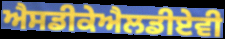
ਐਸਡੀਕੇਐਲਡੀਏਵੀ